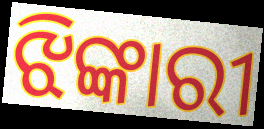
ଝିଙ୍କାରୀ